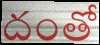
దంతో